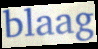
blaag